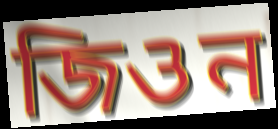
জিওন